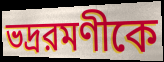
ভদ্ররমণীকে